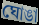
ঘোঙা